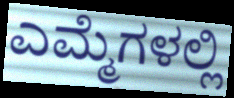
ಎಮ್ಮೆಗಳಲ್ಲಿ